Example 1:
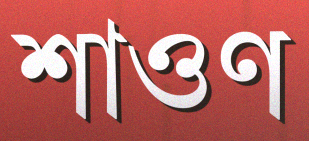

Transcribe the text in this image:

শাওণ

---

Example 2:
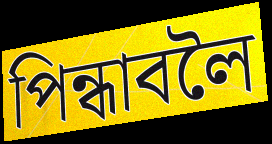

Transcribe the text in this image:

পিন্ধাবলৈ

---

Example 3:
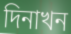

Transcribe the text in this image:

দিনাখন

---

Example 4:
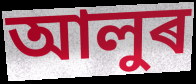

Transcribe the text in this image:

আলুৰ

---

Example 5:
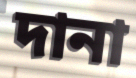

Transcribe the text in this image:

দানা